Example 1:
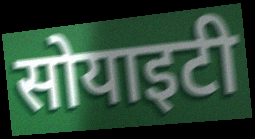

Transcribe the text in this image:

सोयाइटी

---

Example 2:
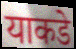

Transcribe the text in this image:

याकडे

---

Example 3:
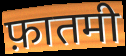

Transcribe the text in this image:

फ़ातमी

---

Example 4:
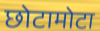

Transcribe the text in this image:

छोटामोटा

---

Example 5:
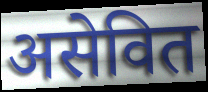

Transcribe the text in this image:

असेवित